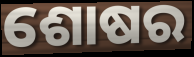
ଶୋଷର